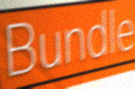
Bundle